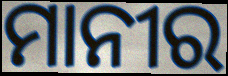
ମାନୀର